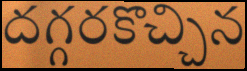
దగ్గరకొచ్చిన